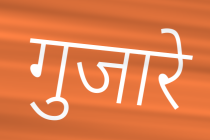
गुजारे